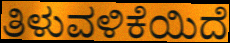
ತಿಳುವಳಿಕೆಯಿದೆ